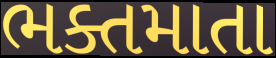
ભક્તમાતા